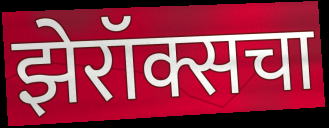
झेरॉक्सचा